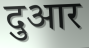
दुआर